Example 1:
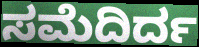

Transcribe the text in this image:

ಸಮೆದಿರ್ದ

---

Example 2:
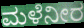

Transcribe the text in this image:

ಮಳೆನೀರ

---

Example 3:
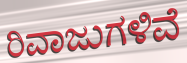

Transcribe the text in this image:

ರಿವಾಜುಗಳಿವೆ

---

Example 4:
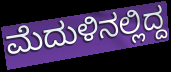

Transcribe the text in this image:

ಮೆದುಳಿನಲ್ಲಿದ್ದ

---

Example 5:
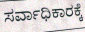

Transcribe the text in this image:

ಸರ್ವಾಧಿಕಾರಕ್ಕೆ